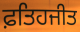
ਫ਼ਤਿਹਜੀਤ